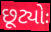
છૂટ્યોઃ